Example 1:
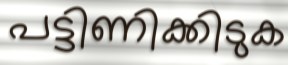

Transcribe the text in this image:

പട്ടിണിക്കിടുക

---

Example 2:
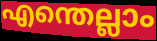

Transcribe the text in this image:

എന്തെല്ലാം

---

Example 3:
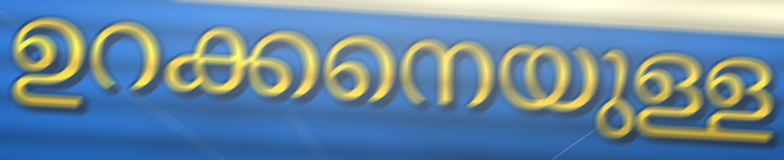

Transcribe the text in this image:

ഉറക്കനെയുള്ള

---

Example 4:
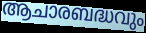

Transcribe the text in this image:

ആചാരബദ്ധവും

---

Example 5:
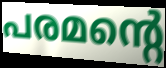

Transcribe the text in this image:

പരമന്റെ